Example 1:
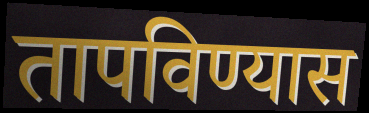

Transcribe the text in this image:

तापविण्यास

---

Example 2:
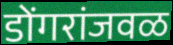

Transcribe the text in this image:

डोंगरांजवळ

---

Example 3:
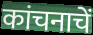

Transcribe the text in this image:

कांचनाचें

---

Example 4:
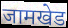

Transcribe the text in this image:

जामखेड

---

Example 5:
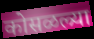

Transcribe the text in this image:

कोसळल्या